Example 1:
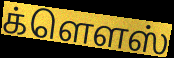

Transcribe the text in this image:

க்ளௌஸ்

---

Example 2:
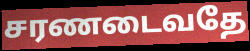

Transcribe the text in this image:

சரணடைவதே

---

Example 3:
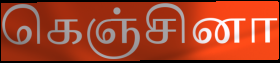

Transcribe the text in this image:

கெஞ்சினா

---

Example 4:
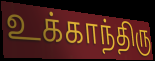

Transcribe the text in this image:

உக்காந்திரு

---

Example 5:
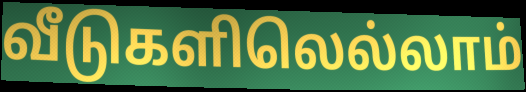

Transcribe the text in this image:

வீடுகளிலெல்லாம்